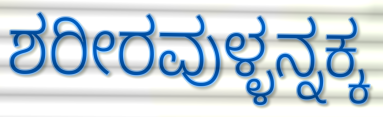
ಶರೀರವುಳ್ಳನ್ನಕ್ಕ